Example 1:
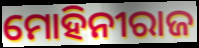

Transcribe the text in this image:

ମୋହିନୀରାଜ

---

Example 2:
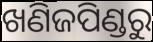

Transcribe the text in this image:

ଖଣିଜପିଣ୍ଡରୁ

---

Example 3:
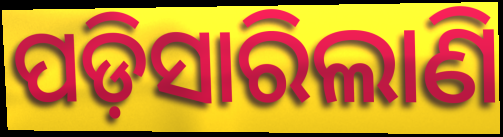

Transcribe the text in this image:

ପଡ଼ିସାରିଲାଣି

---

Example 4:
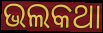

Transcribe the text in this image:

ଭଲକଥା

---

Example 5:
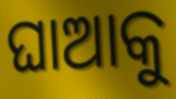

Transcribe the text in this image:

ଘାଆକୁ